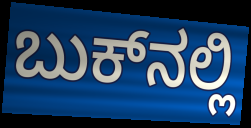
ಬುಕ್‌ನಲ್ಲಿ